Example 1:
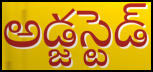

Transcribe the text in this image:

అడ్జస్టెడ్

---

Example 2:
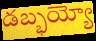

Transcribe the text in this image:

డబ్భయ్యో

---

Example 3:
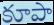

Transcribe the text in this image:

కూపా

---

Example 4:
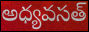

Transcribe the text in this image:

అధ్యవసత్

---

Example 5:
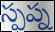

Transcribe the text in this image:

స్పప్న